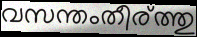
വസന്തംതീര്ത്തു